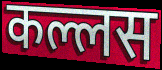
कल्लस